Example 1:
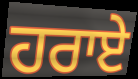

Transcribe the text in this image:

ਹਰਾਏ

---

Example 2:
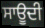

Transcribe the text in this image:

ਸਾਊਦੀ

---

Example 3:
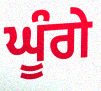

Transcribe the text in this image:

ਘੂੰਗੇ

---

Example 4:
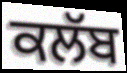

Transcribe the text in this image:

ਕਲੱਬ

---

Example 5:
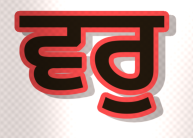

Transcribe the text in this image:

ਵਰੁ